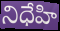
నిధేహి